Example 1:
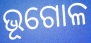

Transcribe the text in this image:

ଭୂଗୋଳ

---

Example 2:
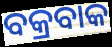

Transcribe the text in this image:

ବକ୍ରବାକ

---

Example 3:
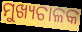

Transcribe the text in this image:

ମୁଖ୍ୟଚାଳକ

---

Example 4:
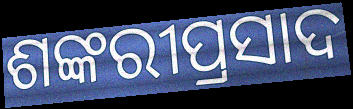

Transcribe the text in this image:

ଶଙ୍କରୀପ୍ରସାଦ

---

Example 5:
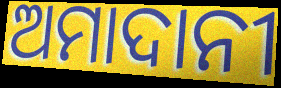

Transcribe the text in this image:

ଅମାଦାନୀ